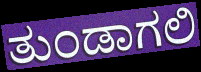
ತುಂಡಾಗಲಿ